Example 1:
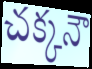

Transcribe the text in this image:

చక్కనౌ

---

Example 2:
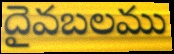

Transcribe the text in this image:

దైవబలము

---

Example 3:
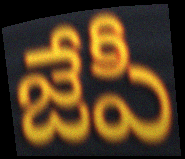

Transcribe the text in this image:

జేపీ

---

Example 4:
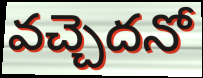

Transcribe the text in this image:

వచ్చెదనో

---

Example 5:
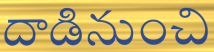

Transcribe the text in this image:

దాడినుంచి